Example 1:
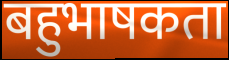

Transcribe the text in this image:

बहुभाषकता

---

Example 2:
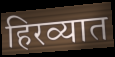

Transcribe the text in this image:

हिरव्यात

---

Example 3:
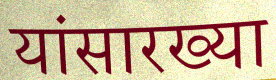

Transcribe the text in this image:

यांसारख्या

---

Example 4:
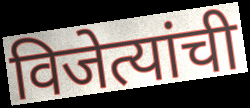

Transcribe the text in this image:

विजेत्यांची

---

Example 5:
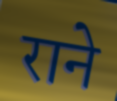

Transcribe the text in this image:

राने